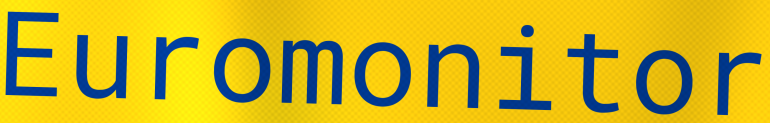
Euromonitor